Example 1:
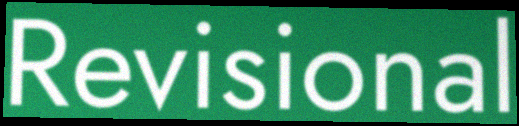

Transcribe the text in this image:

Revisional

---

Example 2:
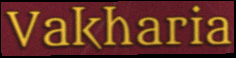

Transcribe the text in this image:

Vakharia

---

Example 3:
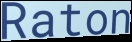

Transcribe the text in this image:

Raton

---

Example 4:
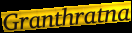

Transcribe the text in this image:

Granthratna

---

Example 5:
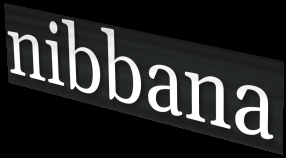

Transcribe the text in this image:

nibbana